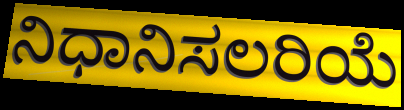
ನಿಧಾನಿಸಲರಿಯೆ